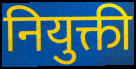
नियुक्ती